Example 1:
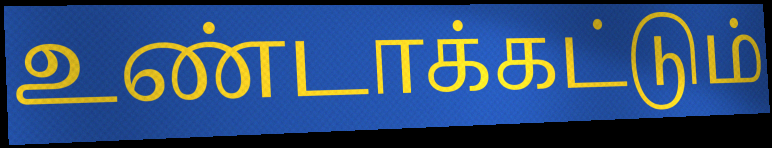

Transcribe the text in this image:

உண்டாக்கட்டும்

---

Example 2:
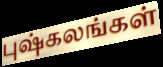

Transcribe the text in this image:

புஷ்கலங்கள்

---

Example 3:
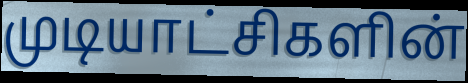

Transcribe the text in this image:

முடியாட்சிகளின்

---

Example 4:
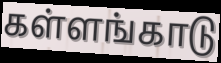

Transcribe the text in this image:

கள்ளங்காடு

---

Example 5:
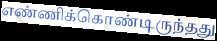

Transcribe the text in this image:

எண்ணிக்கொண்டிருந்தது